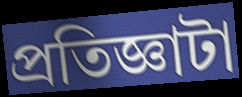
প্রতিজ্ঞাটা